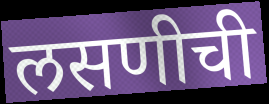
लसणीची